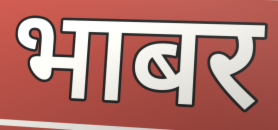
भाबर